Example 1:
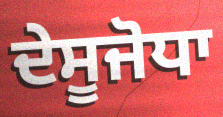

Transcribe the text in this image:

ਦੇਸੂਜੋਧਾ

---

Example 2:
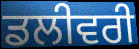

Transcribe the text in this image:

ਡਲੀਵਰੀ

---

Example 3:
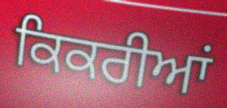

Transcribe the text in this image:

ਕਿਕਰੀਆਂ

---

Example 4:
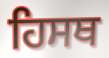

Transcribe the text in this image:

ਹਿਸਥ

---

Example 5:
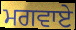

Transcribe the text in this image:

ਮਗਵਾਏ